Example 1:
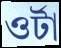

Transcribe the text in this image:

ওর্টা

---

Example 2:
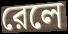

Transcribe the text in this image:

রেলে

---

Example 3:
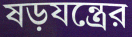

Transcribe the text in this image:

ষড়যন্ত্রের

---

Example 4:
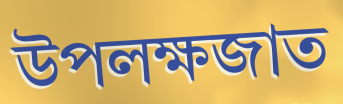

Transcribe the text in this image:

উপলক্ষজাত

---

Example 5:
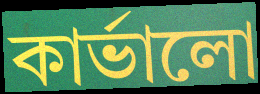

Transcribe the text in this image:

কার্ভালো